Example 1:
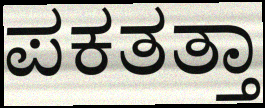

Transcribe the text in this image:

ಪಕತತ್ತಾ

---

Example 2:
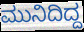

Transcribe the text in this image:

ಮುನಿದಿದ್ದ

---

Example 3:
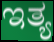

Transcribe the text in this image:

ಇತ್ಯ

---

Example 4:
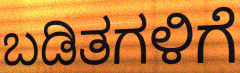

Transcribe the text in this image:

ಬಡಿತಗಳಿಗೆ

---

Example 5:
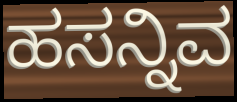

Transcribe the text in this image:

ಹಸನ್ನಿವ